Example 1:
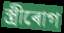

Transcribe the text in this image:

স্ত্ৰীৰোগ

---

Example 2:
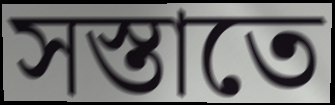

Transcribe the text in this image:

সস্তাতে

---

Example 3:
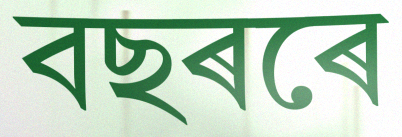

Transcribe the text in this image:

বছৰৰে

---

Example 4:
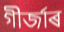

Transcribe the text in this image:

গীৰ্জাৰ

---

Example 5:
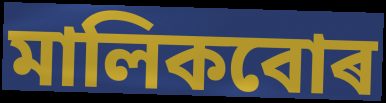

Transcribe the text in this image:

মালিকবোৰ